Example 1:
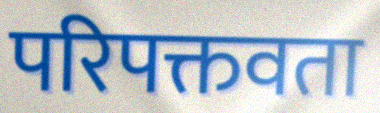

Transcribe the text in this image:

परिपक्तवता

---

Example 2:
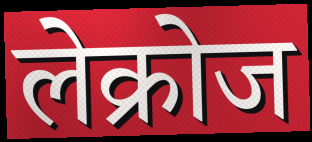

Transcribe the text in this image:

लेक्रोज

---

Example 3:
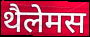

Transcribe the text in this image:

थैलेमस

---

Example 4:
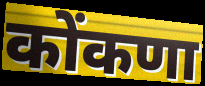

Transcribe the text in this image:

कोंकणा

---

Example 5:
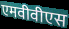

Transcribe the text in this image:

एमवीवीएस